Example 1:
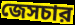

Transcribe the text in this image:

জেসচার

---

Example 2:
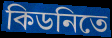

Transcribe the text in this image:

কিডনিতে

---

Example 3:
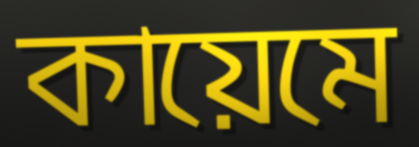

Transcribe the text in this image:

কায়েমে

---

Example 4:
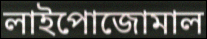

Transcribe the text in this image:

লাইপোজোমাল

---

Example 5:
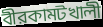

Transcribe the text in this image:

বীরকামটখালী